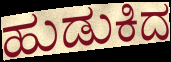
ಹುಡುಕಿದ